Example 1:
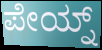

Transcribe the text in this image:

ಪೇಯ್ನ್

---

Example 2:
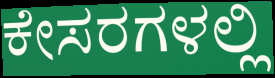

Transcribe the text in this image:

ಕೇಸರಗಳಲ್ಲಿ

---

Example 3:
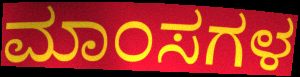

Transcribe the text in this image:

ಮಾಂಸಗಳ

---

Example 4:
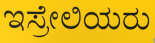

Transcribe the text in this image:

ಇಸ್ರೇಲಿಯರು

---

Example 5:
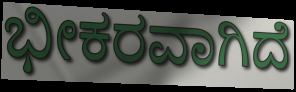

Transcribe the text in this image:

ಭೀಕರವಾಗಿದೆ